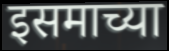
इसमाच्या